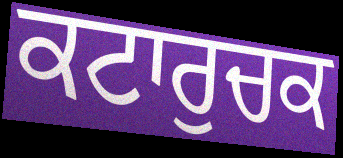
ਕਟਾਰੁਚਕ